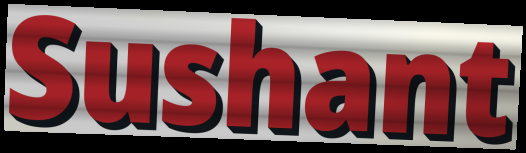
Sushant